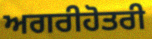
ਅਗਰੀਹੋਤਰੀ